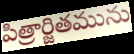
పిత్రార్జితమును